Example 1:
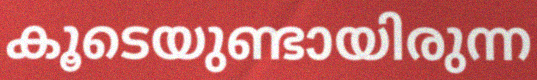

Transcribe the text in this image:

കൂടെയുണ്ടായിരുന്ന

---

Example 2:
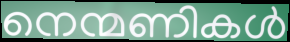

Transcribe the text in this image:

നെന്മണികൾ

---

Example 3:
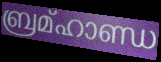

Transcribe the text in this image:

ബ്രമ്ഹാണ്ഡ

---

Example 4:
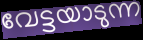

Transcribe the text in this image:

വേട്ടയാടുന്ന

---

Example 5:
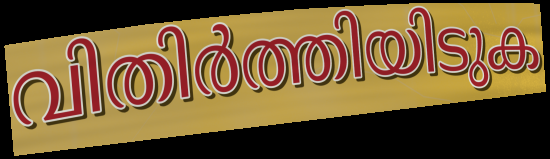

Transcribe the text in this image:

വിതിർത്തിയിടുക